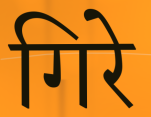
गिरे